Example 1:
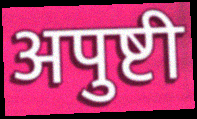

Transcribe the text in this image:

अपुष्टी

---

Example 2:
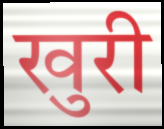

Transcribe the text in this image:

खुरी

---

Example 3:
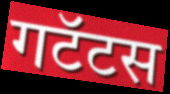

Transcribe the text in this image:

गटॅटस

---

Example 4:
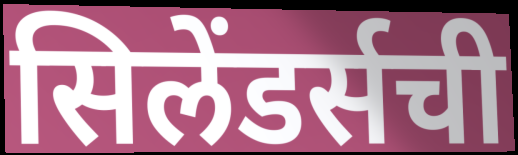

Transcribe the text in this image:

सिलेंडर्सची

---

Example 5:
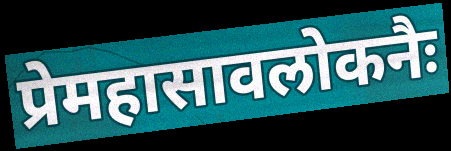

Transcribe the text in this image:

प्रेमहासावलोकनैः